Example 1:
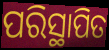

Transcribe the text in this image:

ପରିସ୍ଥାପିତ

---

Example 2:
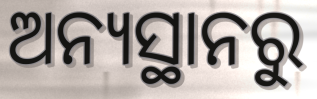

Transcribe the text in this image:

ଅନ୍ୟସ୍ଥାନରୁ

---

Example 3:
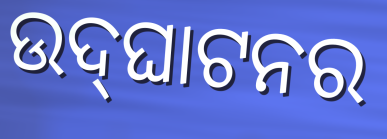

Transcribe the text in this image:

ଉଦ୍‍ଘାଟନର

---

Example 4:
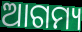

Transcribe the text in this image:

ଆଗମ୍ୟ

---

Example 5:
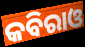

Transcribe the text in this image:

କବିରାଓ